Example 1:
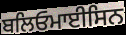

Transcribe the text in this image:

ਬਲਿਓਮਾਈਸਿਨ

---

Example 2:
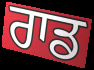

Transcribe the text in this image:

ਰਾਡ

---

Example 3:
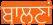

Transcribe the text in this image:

ਬਾਲਣਾਂ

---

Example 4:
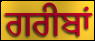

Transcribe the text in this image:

ਗਰੀਬਾਂ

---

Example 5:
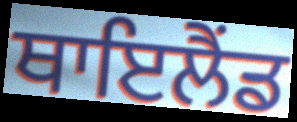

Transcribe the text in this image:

ਥਾਇਲੈਂਡ